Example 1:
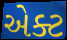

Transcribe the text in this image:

એક્ટ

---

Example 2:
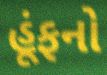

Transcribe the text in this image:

હૂંફનો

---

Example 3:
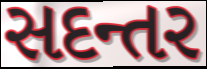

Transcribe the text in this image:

સદન્તર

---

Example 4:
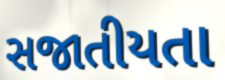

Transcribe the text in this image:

સજાતીયતા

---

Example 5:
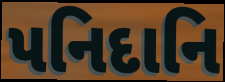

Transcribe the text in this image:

પનિદાનિ